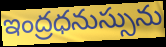
ఇంద్రధనుస్సును